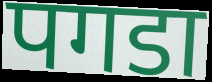
पगडा